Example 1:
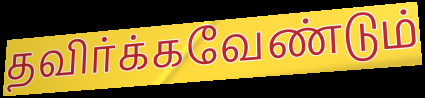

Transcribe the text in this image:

தவிர்க்கவேண்டும்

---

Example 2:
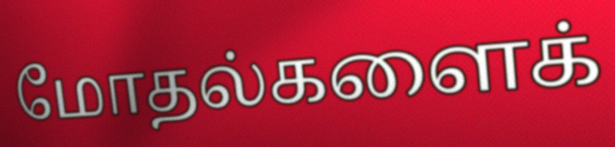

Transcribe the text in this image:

மோதல்களைக்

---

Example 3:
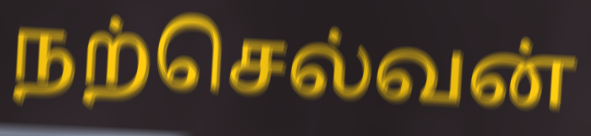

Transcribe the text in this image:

நற்செல்வன்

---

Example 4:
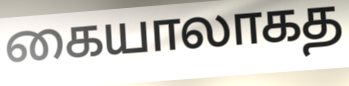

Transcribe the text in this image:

கையாலாகத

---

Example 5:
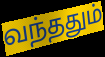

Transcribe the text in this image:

வந்ததும்